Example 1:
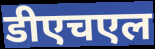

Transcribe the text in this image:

डीएचएल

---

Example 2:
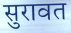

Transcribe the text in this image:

सुरावत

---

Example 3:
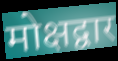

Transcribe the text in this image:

मोक्षद्वार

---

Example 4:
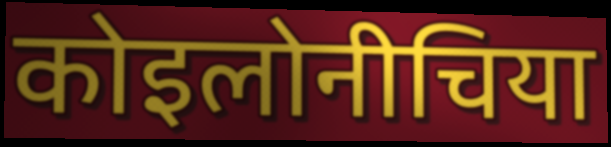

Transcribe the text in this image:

कोइलोनीचिया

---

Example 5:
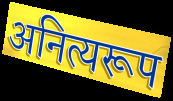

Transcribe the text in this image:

अनित्यरूप